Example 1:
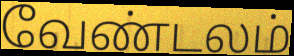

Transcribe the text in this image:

வேண்டலம்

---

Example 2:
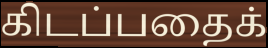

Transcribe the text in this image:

கிடப்பதைக்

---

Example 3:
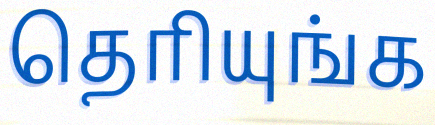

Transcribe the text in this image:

தெரியுங்க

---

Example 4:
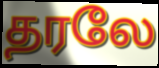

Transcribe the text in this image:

தரலே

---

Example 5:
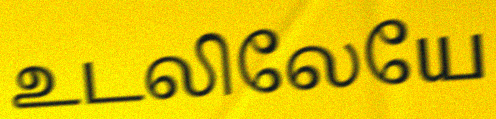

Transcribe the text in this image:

உடலிலேயே